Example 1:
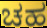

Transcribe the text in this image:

ಚಹ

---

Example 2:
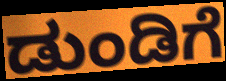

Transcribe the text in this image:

ಡುಂಡಿಗೆ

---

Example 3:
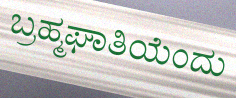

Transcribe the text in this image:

ಬ್ರಹ್ಮಘಾತಿಯೆಂದು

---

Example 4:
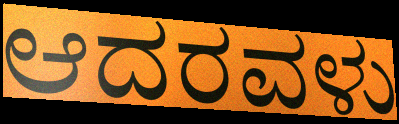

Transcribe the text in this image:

ಆದರವಳು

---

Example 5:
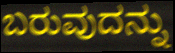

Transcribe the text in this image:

ಬರುವುದನ್ನು